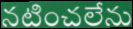
నటించలేను